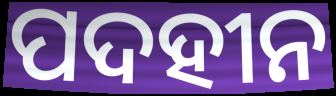
ପଦହୀନ